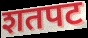
शतपट